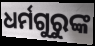
ଧର୍ମଗୁରୁଙ୍କ